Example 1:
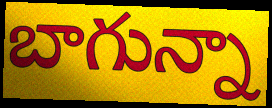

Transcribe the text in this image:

బాగున్నా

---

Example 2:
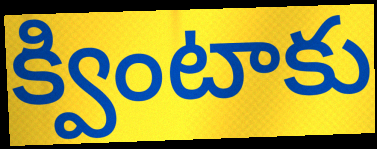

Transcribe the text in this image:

క్వింటాకు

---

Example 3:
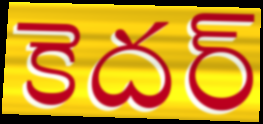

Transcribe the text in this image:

కెదర్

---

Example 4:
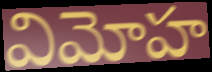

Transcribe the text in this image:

విమోహ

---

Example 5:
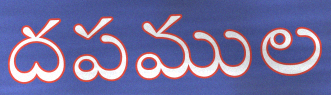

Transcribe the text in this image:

దపముల